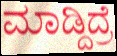
ಮಾಡ್ದಿದ್ರೆ